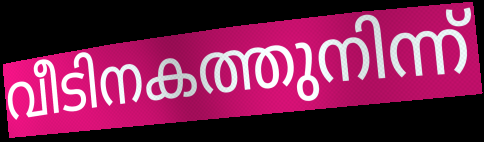
വീടിനകത്തുനിന്ന്